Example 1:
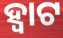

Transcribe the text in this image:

ହ୍ଵାଟ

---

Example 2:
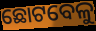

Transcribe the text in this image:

ଛୋଟବେଳୁ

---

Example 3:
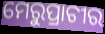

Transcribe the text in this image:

ମେରୁପ୍ରାଚୀର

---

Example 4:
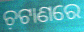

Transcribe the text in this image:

ଚ଼ଟାଣରେ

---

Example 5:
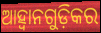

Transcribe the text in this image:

ଆହ୍ଵାନଗୁଡ଼ିକର